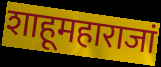
शाहूमहाराजां